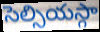
సెల్సియస్గా